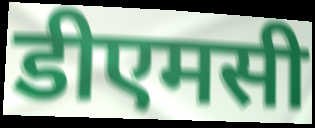
डीएमसी